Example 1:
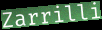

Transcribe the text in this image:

Zarrilli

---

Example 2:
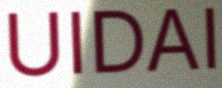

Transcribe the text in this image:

UIDAI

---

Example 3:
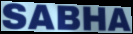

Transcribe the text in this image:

SABHA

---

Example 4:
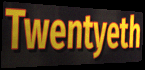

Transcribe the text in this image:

Twentyeth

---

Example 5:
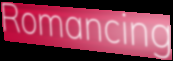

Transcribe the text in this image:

Romancing